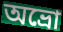
অভ্রো